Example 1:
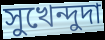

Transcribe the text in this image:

সুখেন্দুদা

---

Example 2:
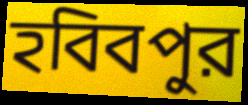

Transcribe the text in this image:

হবিবপুর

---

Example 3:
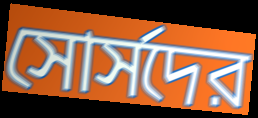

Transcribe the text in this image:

সোর্সদের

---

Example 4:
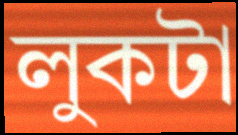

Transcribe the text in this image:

লুকটা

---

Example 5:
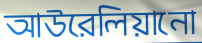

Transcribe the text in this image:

আউরেলিয়ানো